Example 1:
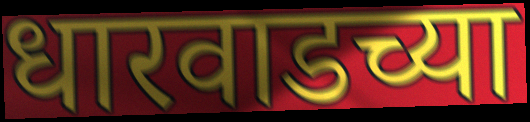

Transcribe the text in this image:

धारवाडच्या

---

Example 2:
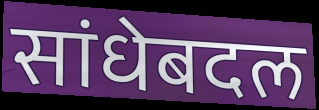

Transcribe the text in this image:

सांधेबदल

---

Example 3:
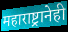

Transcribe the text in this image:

महाराष्ट्रानेही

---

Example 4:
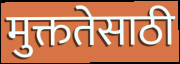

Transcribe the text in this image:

मुक्ततेसाठी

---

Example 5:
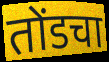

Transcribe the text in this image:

तोंडचा